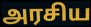
அரசிய